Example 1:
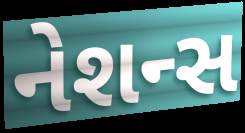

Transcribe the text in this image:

નેશન્સ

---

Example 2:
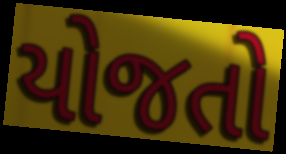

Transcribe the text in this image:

યોજતો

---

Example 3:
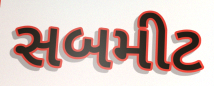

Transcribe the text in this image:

સબમીટ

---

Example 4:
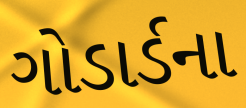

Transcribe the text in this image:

ગોડાર્ડના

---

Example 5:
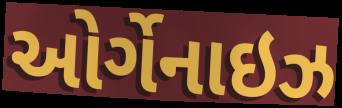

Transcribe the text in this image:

ઓર્ગેનાઇઝ